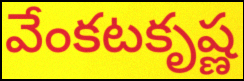
వేంకటకృష్ణ